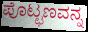
ಪೊಟ್ಟಣವನ್ನ